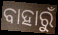
ବାହାରୁଁ